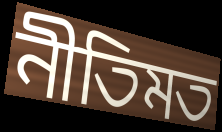
নীতিমত